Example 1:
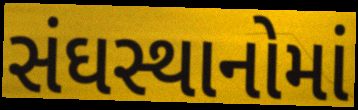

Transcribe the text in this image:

સંઘસ્થાનોમાં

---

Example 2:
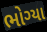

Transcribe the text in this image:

ભોગ્યા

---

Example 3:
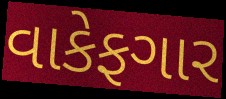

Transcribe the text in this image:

વાકેફગાર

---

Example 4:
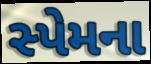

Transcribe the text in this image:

સ્પેમના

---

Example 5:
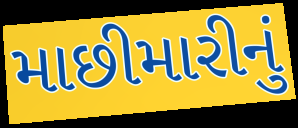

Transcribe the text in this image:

માછીમારીનું